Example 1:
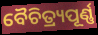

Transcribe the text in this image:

ବୈଚିତ୍ର୍ୟପୂର୍ଣ୍ଣ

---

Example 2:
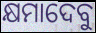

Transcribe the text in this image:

କ୍ଷମାଦେବୁ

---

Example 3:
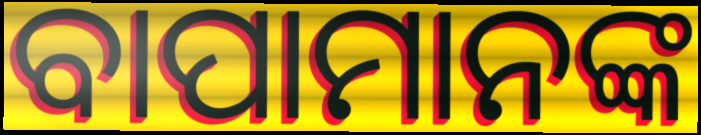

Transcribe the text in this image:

ବାପାମାନଙ୍କ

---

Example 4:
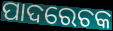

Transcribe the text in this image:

ପାଦରେଚକ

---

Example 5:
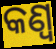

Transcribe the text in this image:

କଣ୍ୱ